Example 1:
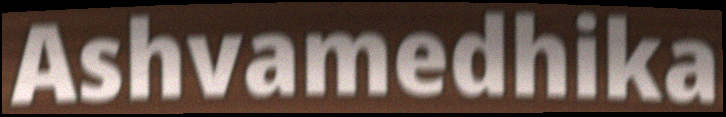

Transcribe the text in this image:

Ashvamedhika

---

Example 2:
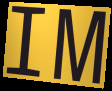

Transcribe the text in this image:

IM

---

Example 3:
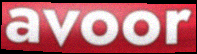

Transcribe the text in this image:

avoor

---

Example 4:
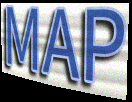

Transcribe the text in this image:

MAP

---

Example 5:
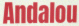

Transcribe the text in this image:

Andalou